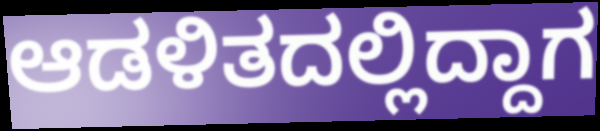
ಆಡಳಿತದಲ್ಲಿದ್ದಾಗ